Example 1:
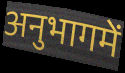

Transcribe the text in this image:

अनुभागमें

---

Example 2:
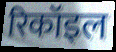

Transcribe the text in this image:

रिकॉइल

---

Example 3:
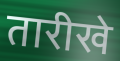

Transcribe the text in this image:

तारीखे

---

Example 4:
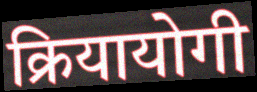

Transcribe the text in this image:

क्रियायोगी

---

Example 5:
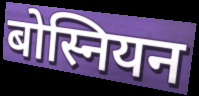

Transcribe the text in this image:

बोस्नियन